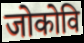
जोकोवि